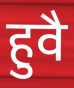
हुवै